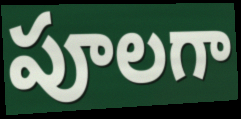
పూలగా